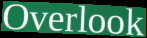
Overlook